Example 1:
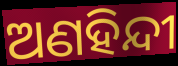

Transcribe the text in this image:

ଅଣହିନ୍ଦୀ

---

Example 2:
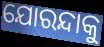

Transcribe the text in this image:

ଯୋରନ୍ଦାକୁ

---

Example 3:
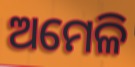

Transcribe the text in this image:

ଅମେଳି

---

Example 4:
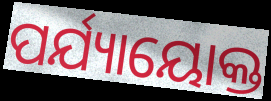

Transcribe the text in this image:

ପର୍ଯ୍ୟାୟୋକ୍ତ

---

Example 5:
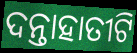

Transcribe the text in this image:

ଦନ୍ତାହାତୀଟି